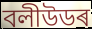
বলীউডৰ